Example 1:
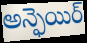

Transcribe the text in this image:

అన్ఫెయిర్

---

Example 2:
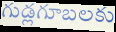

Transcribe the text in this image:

గుడ్లగూబలకు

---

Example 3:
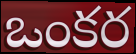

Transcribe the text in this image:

ఒంకర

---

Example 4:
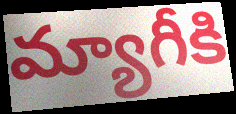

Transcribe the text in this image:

మ్యాగీకి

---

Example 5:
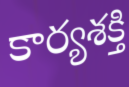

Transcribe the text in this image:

కార్యశక్తి